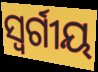
ସ୍ୱର୍ଗୀୟ